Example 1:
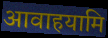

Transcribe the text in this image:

आवाहयामि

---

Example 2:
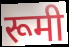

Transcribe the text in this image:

रूमी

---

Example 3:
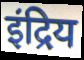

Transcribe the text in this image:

इंद्रिय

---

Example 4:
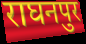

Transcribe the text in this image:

राघनपुर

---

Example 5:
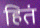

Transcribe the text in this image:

हितं